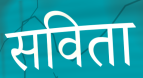
सविता